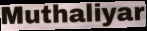
Muthaliyar